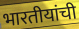
भारतीयांची